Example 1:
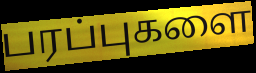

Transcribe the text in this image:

பரப்புகளை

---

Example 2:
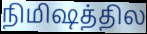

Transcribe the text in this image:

நிமிஷத்தில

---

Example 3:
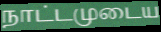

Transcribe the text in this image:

நாட்டமுடைய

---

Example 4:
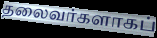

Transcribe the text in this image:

தலைவர்களாகப்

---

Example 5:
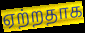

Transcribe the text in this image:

ஏற்றதாக